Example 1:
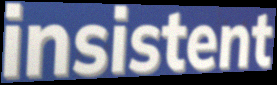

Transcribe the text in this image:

insistent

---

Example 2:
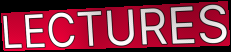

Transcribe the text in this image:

LECTURES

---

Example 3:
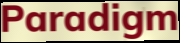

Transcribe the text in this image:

Paradigm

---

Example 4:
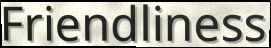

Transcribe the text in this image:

Friendliness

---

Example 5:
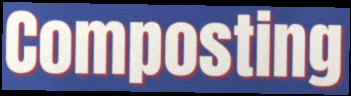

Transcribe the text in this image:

Composting